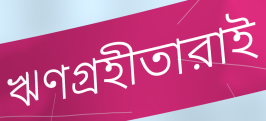
ঋণগ্রহীতারাই